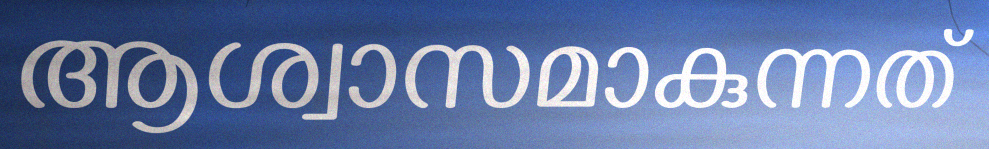
ആശ്വാസമാകുന്നത്